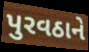
પુરવઠાને